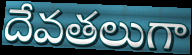
దేవతలుగా